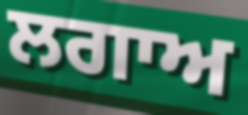
ਲਗਾਅ